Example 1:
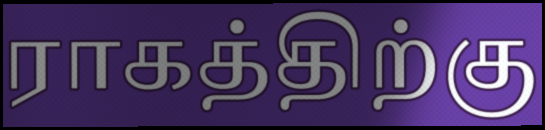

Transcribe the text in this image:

ராகத்திற்கு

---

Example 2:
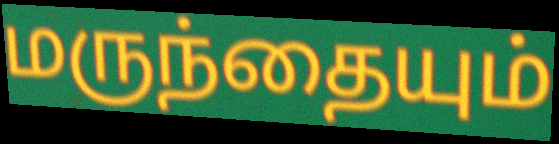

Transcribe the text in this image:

மருந்தையும்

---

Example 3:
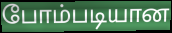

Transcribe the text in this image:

போம்படியான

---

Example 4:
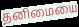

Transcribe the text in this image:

தனிமையை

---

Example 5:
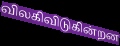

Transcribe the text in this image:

விலகிவிடுகின்றன